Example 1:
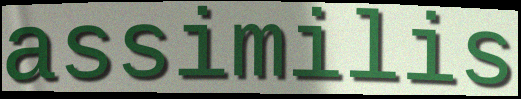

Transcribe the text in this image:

assimilis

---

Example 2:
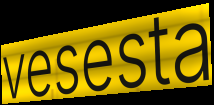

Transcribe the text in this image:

vesesta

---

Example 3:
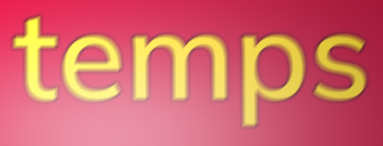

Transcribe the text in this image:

temps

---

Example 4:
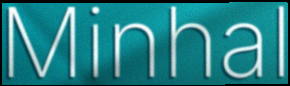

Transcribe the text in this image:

Minhal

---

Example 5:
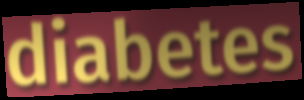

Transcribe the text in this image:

diabetes